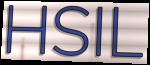
HSIL